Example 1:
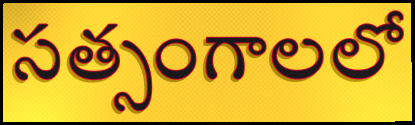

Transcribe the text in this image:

సత్సంగాలలో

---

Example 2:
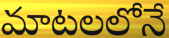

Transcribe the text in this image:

మాటలలోనే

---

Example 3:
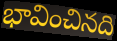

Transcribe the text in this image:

భావించినది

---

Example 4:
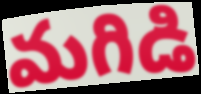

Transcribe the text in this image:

మగిడి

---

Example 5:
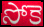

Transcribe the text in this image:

సోకె